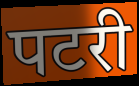
पटरी